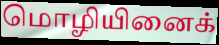
மொழியினைக்